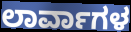
ಲಾರ್ವಾಗಳ